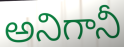
అనిగానీ